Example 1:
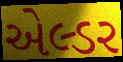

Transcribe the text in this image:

એલ્ડર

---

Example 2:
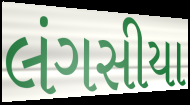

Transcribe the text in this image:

લંગસીયા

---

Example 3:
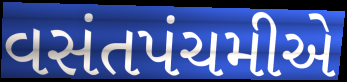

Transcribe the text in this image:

વસંતપંચમીએ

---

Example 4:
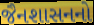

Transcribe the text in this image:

જૈનશાસનનો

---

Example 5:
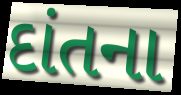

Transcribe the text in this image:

દાંતના